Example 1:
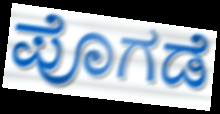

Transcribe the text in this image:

ಪೊಗಡೆ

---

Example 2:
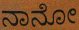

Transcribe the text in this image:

ನಾನೋ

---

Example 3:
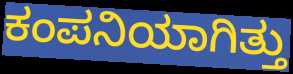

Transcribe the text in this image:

ಕಂಪನಿಯಾಗಿತ್ತು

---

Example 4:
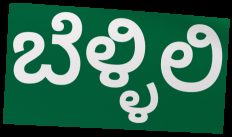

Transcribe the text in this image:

ಬೆಳ್ಳಿಲಿ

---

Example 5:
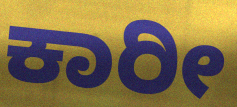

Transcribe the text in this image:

ಕಾರೀ